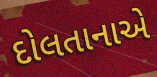
દોલતાનાએ